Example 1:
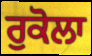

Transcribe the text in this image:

ਰੁਕੋਲਾ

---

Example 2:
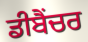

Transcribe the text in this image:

ਡੀਬੈਂਚਰ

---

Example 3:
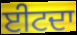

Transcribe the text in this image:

ਈਟਦਾ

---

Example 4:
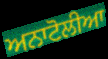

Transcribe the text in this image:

ਅਨਾਟੋਲੀਆ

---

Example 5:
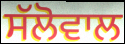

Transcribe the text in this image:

ਸੱਲੋਵਾਲ